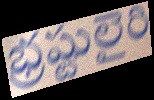
భ్రష్టులైరి